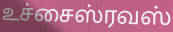
உச்சைஸ்ரவஸ்